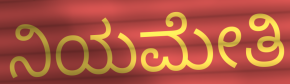
ನಿಯಮೇತಿ